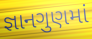
જ્ઞાનગુણમાં